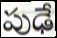
పుఢే